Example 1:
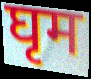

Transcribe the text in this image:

घृम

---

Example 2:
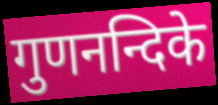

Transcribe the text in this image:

गुणनन्दिके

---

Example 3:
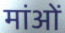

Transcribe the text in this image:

मांओं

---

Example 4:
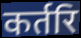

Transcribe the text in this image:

कर्तरि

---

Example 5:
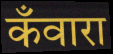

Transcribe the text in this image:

कँवारा